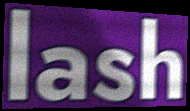
lash